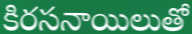
కిరసనాయిలుతో